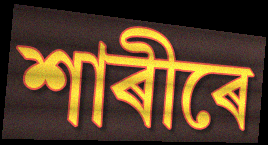
শাৰীৰে